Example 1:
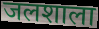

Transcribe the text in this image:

जलशाला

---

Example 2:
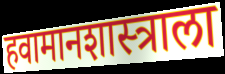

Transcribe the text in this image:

हवामानशास्त्राला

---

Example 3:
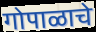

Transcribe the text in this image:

गोपाळाचे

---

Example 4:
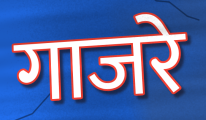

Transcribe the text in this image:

गाजरे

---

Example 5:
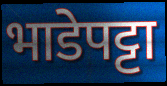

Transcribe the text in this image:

भाडेपट्टा